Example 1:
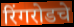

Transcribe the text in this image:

रिंगरोडचे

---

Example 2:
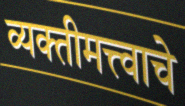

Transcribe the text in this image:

व्यक्तीमत्त्वाचे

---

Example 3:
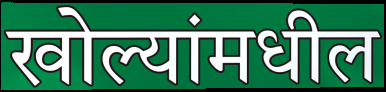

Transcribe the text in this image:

खोल्यांमधील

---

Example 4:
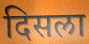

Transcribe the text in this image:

दिसला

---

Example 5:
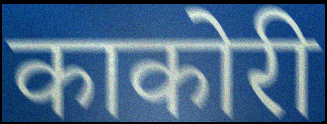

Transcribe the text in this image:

काकोरी